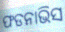
ଫଡନାଭିସ